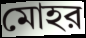
মোহর